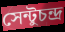
সেন্টুচন্দ্র